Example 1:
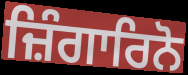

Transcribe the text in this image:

ਜ਼ਿੰਗਾਰਿਨੋ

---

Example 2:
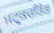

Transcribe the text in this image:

ਸਟ੍ਰਕਚਰਿੰਗ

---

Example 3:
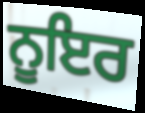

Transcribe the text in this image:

ਨੂਇਰ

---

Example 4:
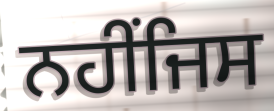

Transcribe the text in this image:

ਨਹੀਂਜਿਸ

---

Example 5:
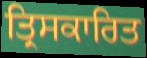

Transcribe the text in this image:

ਤ੍ਰਿਸਕਾਰਿਤ